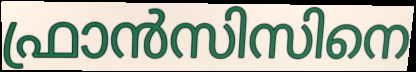
ഫ്രാൻസിസിനെ